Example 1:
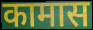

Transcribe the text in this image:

कामास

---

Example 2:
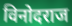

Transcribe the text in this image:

विनोदराज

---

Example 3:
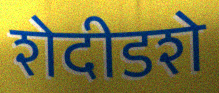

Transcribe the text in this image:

शेदीडशे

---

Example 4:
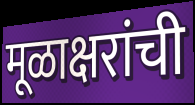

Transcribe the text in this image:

मूळाक्षरांची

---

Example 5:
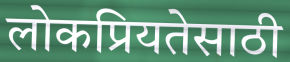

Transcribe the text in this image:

लोकप्रियतेसाठी